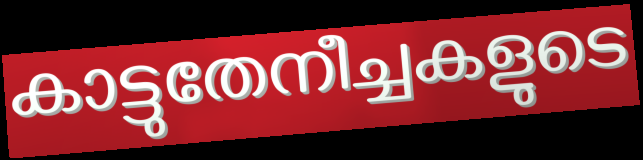
കാട്ടുതേനീച്ചകളുടെ